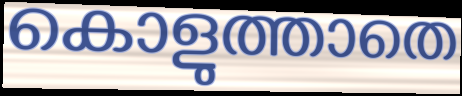
കൊളുത്താതെ